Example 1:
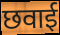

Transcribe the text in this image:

छवाई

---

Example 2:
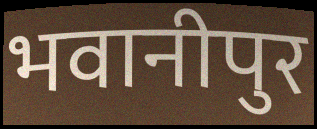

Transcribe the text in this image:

भवानीपुर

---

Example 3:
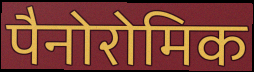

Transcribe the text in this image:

पैनोरोमिक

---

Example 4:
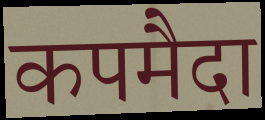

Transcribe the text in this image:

कपमैदा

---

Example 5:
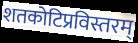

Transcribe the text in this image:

शतकोटिप्रविस्तरम्